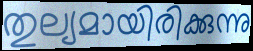
തുല്യമായിരിക്കുന്നു